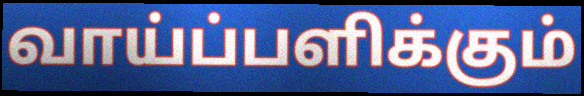
வாய்ப்பளிக்கும்